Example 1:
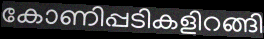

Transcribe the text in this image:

കോണിപ്പടികളിറങ്ങി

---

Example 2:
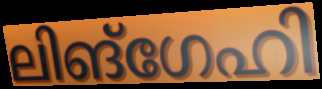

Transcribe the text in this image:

ലിങ്ഗേഹി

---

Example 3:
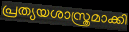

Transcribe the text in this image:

പ്രത്യയശാസ്ത്രമാക്കി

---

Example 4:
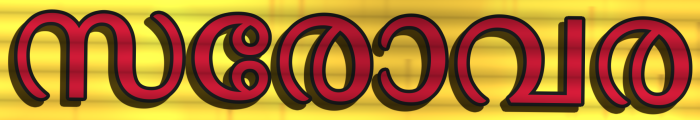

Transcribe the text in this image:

സരോവര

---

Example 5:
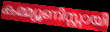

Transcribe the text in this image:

കമ്മ്യൂണിസ്റ്റായി